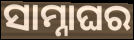
ସାମ୍ନାଘର